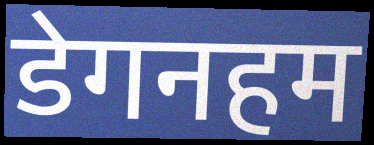
डेगनहम